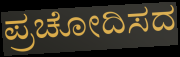
ಪ್ರಚೋದಿಸದ